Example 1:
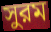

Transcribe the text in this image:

সুরম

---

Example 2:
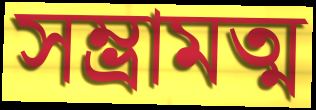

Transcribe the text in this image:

সম্ভ্রামত্ম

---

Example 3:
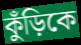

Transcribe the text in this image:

কুঁড়িকে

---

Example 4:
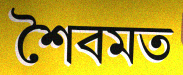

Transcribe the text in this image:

শৈবমত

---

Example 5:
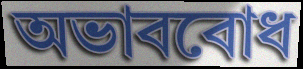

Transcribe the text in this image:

অভাববোধ